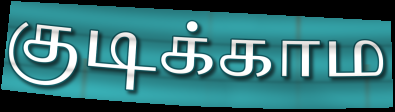
குடிக்காம